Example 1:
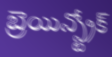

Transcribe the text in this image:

బ్రెయిన్స్ట్రోక్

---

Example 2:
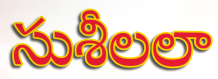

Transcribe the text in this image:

సుశీలలా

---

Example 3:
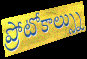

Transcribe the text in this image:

ప్రోటోకాల్స్ను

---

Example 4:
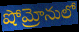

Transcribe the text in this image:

షోమ్రోనులో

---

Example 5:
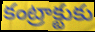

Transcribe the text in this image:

కంట్రాక్టుకు